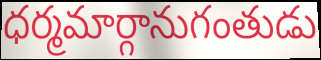
ధర్మమార్గానుగంతుడు